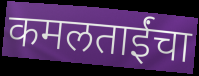
कमलताईंचा